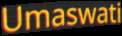
Umaswati